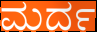
ಮರ್ದ